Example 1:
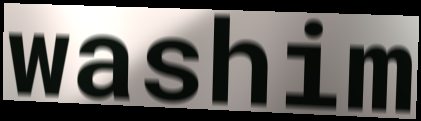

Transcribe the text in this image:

washim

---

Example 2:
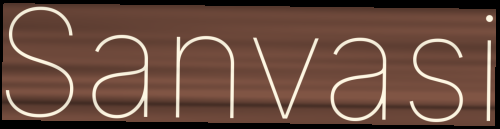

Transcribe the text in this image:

Sanvasi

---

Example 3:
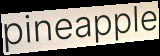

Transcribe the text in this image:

pineapple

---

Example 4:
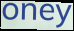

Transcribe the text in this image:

oney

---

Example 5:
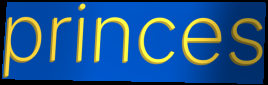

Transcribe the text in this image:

princes